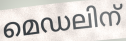
മെഡലിന്